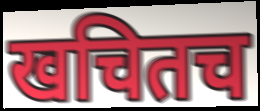
खचितच